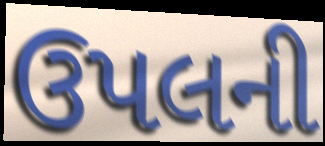
ઉપલની